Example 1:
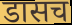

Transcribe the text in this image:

डासच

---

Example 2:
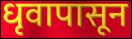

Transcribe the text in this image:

धृवापासून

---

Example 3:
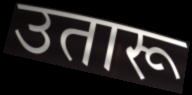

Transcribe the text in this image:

उतारू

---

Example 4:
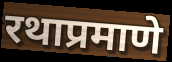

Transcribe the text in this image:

रथाप्रमाणे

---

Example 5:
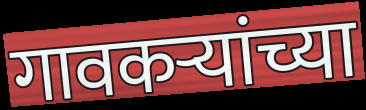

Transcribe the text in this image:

गावकऱ्यांच्या